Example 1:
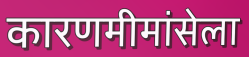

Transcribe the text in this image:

कारणमीमांसेला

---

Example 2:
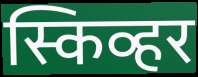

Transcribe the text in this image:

स्किव्हर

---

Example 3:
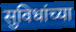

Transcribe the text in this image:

सुविधांच्या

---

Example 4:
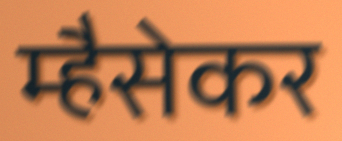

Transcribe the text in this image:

म्हैसेकर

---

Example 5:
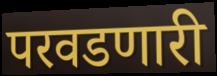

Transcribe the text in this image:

परवडणारी